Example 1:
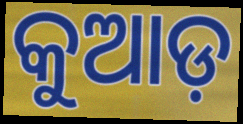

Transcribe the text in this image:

କୁଆଡ଼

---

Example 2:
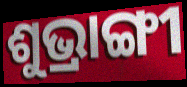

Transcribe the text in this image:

ଶୁଭ୍ରାଙ୍ଗୀ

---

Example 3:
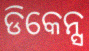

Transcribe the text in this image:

ଡିକେନ୍ସ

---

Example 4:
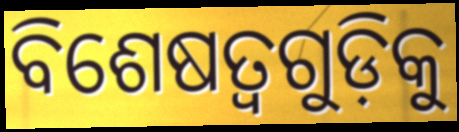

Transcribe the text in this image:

ବିଶେଷତ୍ୱଗୁଡ଼ିକୁ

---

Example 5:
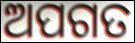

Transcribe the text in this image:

ଅପଗତ